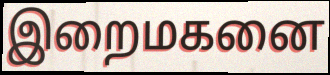
இறைமகனை